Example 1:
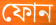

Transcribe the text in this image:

ফোন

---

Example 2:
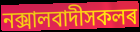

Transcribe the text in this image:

নক্সালবাদীসকলৰ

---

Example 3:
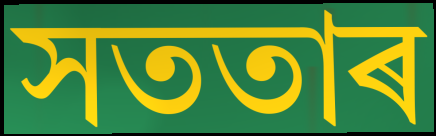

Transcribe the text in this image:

সততাৰ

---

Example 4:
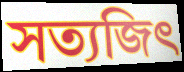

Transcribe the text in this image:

সত্যজিৎ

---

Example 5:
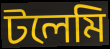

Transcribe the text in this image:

টলেমি